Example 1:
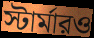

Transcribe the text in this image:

স্টার্মারও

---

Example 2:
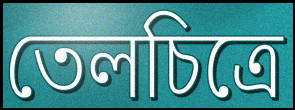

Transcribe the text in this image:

তেলচিত্রে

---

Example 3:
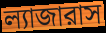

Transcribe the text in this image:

ল্যাজারাস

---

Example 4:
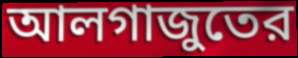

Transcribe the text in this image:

আলগাজুতের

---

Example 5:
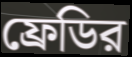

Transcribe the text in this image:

ফ্রেডির